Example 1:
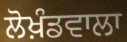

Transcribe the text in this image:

ਲੋਖ਼ੰਡਵਾਲਾ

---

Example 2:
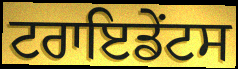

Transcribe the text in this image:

ਟਰਾਇਡੇਂਟਸ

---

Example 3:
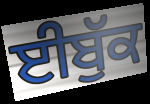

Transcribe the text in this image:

ਈਬੁੱਕ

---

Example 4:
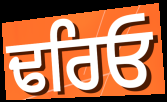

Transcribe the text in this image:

ਢਰਿਓ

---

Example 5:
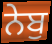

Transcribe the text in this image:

ਨੇਬੁ